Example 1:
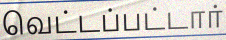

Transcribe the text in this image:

வெட்டப்பட்டார்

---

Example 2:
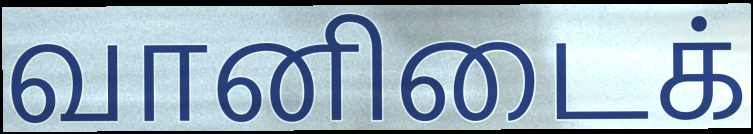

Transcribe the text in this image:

வானிடைக்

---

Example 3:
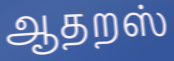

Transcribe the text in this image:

ஆதறஸ்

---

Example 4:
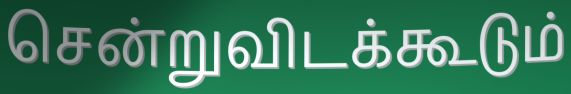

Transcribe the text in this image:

சென்றுவிடக்கூடும்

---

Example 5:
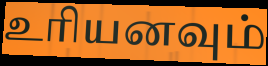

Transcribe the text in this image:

உரியனவும்